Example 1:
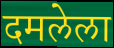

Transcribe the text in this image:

दमलेला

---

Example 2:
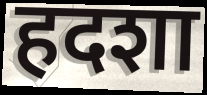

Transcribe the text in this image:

हदशा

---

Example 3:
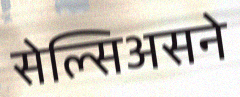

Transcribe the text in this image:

सेल्सिअसने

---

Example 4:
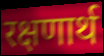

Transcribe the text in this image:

रक्षणार्थ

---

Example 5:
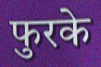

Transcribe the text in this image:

फुरके